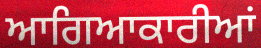
ਆਗਿਆਕਾਰੀਆਂ